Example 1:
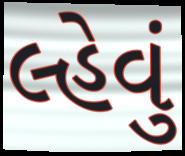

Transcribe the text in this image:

લ્હેવું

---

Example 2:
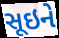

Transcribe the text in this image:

સૂઇને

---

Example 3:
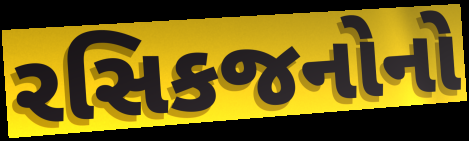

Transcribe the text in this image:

રસિકજનોનો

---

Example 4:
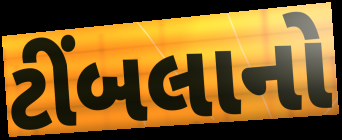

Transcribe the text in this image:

ટીંબલાનો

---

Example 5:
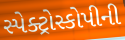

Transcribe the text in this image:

સ્પેક્ટ્રોસ્કોપીની